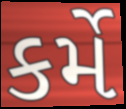
કર્મે